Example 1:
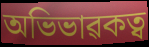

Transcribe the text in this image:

অভিভাৱকত্ব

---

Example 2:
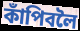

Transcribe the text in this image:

কাঁপিবলৈ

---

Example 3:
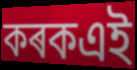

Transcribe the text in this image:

কৰকএই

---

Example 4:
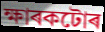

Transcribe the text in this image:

ক্ষাৰকটোৰ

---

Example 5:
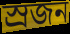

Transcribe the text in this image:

স্ৰজন